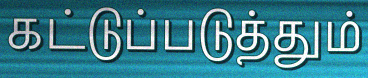
கட்டுப்படுத்தும்